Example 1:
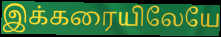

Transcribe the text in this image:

இக்கரையிலேயே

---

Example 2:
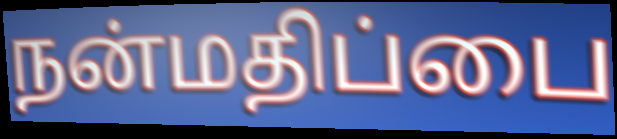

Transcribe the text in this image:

நன்மதிப்பை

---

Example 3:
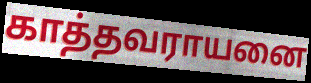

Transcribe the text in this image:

காத்தவராயனை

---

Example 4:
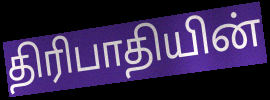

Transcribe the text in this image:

திரிபாதியின்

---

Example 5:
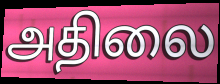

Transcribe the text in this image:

அதிலை